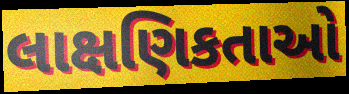
લાક્ષણિકતાઓ